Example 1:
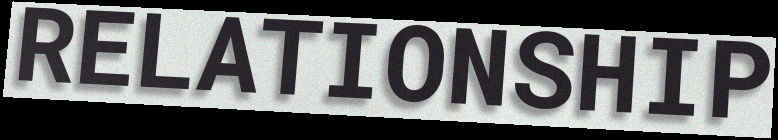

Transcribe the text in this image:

RELATIONSHIP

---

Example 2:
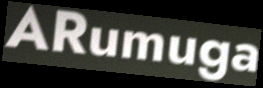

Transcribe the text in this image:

ARumuga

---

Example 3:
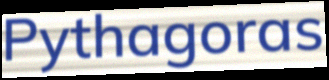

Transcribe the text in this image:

Pythagoras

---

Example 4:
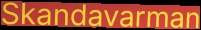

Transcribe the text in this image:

Skandavarman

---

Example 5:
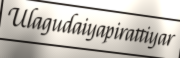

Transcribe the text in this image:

Ulagudaiyapirattiyar